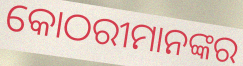
କୋଠରୀମାନଙ୍କର